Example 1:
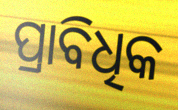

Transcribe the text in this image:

ପ୍ରାବିଧିକ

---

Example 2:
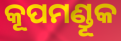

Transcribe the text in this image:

କୂପମଣ୍ଡୂକ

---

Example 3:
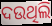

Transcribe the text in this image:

ଦଉଥିଲି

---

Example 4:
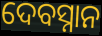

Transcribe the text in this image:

ଦେବସ୍ନାନ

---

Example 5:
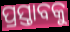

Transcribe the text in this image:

ପ୍ରସ୍ତାବକୁ